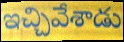
ఇచ్చివేశాడు